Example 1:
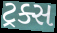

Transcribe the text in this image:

ટ્રક્સ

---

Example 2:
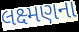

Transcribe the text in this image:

લક્ષ્મણના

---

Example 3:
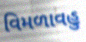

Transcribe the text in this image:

વિમળાવહુ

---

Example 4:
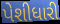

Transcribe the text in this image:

પેશીધારી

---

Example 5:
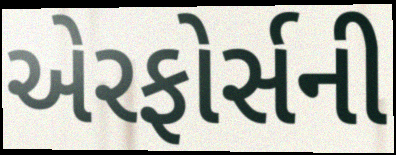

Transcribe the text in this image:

એરફોર્સની